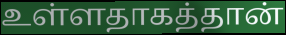
உள்ளதாகத்தான்